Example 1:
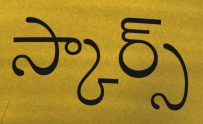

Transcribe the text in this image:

స్కార్స్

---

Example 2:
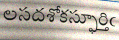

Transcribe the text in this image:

లసదశోకస్ఫూర్తిఁ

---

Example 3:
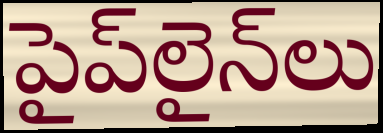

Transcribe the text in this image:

పైప్‌లైన్‌లు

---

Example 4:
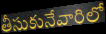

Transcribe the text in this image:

తీసుకునేవారిలో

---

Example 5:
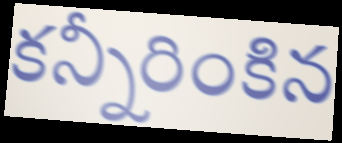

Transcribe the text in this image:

కన్నీరింకిన